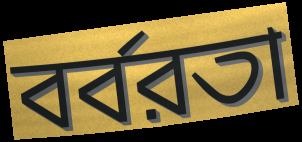
বর্বরতা